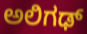
ಅಲಿಗಢ್